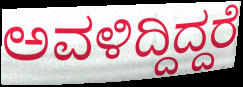
ಅವಳಿದ್ದಿದ್ದರೆ